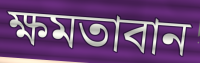
ক্ষমতাবান